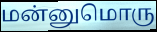
மன்னுமொரு